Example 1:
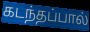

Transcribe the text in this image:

கடந்தப்பால்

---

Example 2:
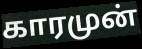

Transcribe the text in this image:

காரமுன்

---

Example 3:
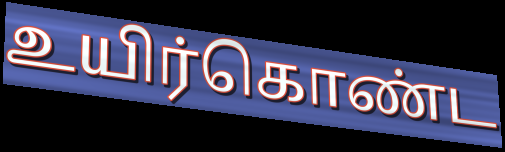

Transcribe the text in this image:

உயிர்கொண்ட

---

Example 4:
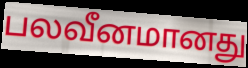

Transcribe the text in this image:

பலவீனமானது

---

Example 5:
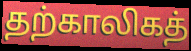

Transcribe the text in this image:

தற்காலிகத்